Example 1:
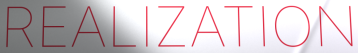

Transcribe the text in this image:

REALIZATION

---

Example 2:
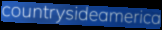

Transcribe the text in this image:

countrysideamerica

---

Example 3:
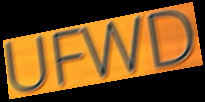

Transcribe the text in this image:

UFWD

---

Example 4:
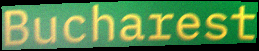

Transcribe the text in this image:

Bucharest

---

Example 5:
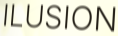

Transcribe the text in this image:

ILUSION